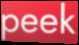
peek